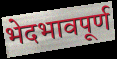
भेदभावपूर्ण